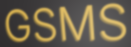
GSMS